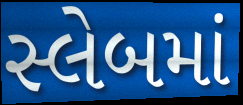
સ્લેબમાં